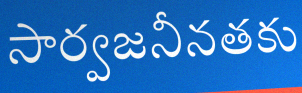
సార్వజనీనతకు